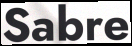
Sabre